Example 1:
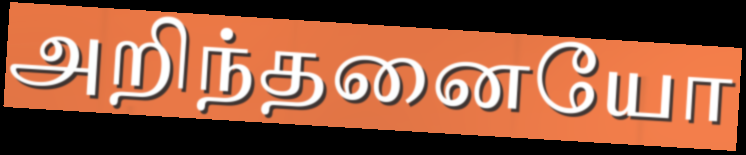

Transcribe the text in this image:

அறிந்தனையோ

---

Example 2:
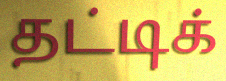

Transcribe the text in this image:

தட்டிக்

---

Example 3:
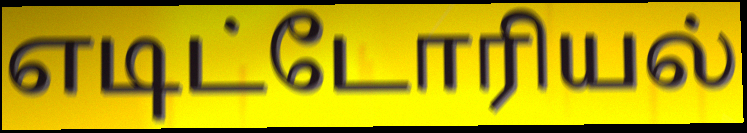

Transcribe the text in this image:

எடிட்டோரியல்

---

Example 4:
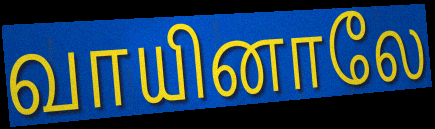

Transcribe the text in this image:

வாயினாலே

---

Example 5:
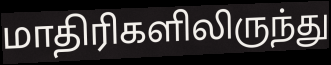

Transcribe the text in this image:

மாதிரிகளிலிருந்து